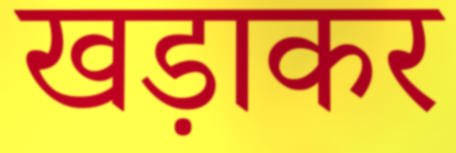
खड़ाकर